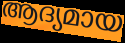
ആദ്യമായ